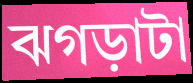
ঝগড়াটা